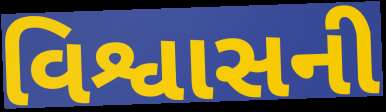
વિશ્વાસની